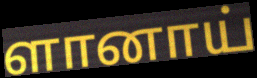
ளானாய்